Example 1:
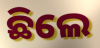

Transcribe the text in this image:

ଛିଲେ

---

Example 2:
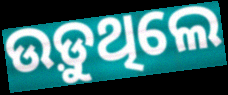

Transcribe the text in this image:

ଉଡ଼ୁଥିଲେ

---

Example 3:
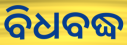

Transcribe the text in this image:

ବିଧବଦ୍ଧ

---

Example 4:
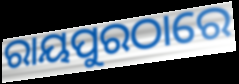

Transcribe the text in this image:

ରାୟପୁରଠାରେ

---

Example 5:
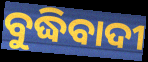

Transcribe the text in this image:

ବୁଦ୍ଧିବାଦୀ